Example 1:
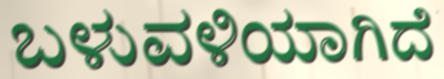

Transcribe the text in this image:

ಬಳುವಳಿಯಾಗಿದೆ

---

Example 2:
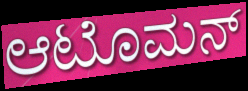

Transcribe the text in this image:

ಆಟೊಮನ್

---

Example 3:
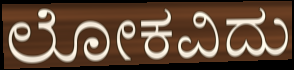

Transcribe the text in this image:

ಲೋಕವಿದು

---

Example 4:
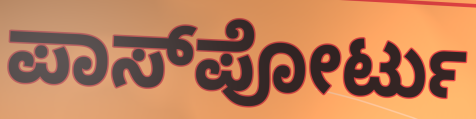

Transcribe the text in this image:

ಪಾಸ್‌ಪೋರ್ಟು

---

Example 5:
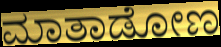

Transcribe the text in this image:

ಮಾತಾಡೋಣ